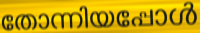
തോന്നിയപ്പോൾ